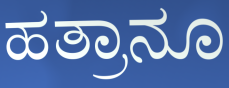
ಹತ್ರಾನೂ